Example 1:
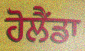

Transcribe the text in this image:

ਹੋਲੈਂਡਾ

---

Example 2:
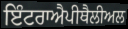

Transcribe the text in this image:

ਇੰਟਰਾਐਪੀਥੈਲੀਅਲ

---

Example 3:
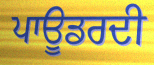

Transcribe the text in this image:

ਪਾਊਡਰਦੀ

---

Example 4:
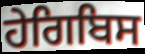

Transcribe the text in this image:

ਹੇਗਿਬਿਸ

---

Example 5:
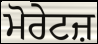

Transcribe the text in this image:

ਮੋਰੇਟਜ਼